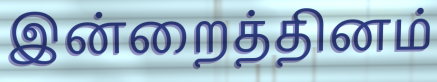
இன்றைத்தினம்